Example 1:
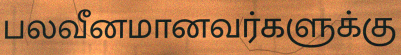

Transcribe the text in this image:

பலவீனமானவர்களுக்கு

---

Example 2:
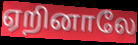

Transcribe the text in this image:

ஏறினாலே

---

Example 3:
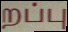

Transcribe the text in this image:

றப்பு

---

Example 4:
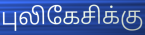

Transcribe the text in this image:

புலிகேசிக்கு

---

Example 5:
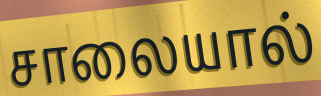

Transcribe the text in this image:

சாலையால்